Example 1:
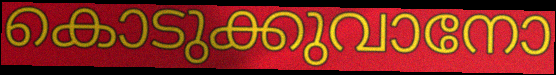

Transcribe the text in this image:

കൊടുക്കുവാനോ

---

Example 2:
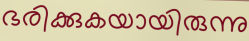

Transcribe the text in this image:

ഭരിക്കുകയായിരുന്നു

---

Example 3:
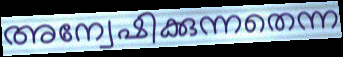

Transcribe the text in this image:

അന്വേഷിക്കുന്നതെന്ന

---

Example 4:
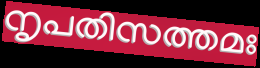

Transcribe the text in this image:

നൃപതിസത്തമഃ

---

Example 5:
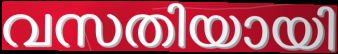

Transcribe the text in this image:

വസതിയായി